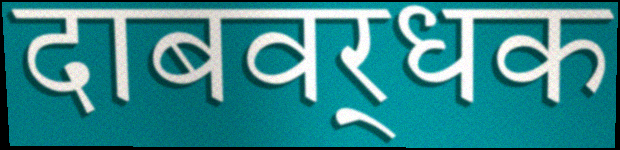
दाबवर्धक